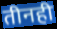
तीनही